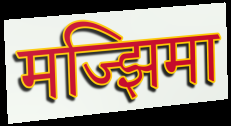
मज्झिमा